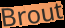
Brout